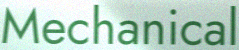
Mechanical